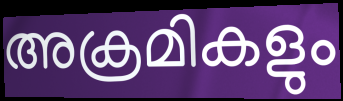
അക്രമികളും